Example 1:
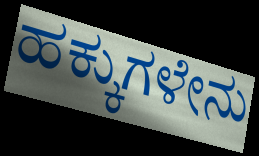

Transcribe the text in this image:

ಹಕ್ಕುಗಳೇನು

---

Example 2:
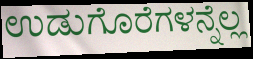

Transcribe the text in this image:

ಉಡುಗೊರೆಗಳನ್ನೆಲ್ಲ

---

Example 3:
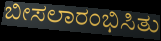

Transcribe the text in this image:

ಬೀಸಲಾರಂಭಿಸಿತು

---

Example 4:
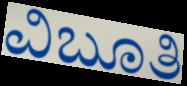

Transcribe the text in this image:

ವಿಬೂತಿ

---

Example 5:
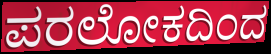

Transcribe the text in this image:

ಪರಲೋಕದಿಂದ